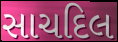
સાચદિલ